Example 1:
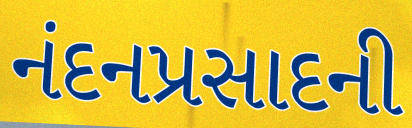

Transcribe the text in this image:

નંદનપ્રસાદની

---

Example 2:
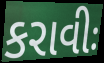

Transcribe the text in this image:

કરાવીઃ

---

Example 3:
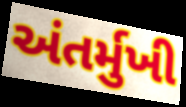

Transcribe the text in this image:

અંતર્મુખી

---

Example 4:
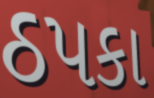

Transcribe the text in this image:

ઠપકા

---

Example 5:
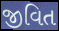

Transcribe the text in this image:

જીવિત